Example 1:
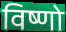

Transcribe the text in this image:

विष्णो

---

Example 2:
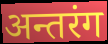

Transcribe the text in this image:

अन्तरंग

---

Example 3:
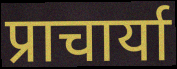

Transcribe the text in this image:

प्राचार्या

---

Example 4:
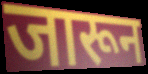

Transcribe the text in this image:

जारून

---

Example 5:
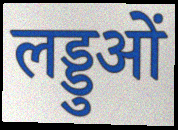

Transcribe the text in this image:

लड्डुओं